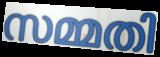
സമ്മതി